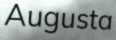
Augusta